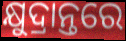
କ୍ଷୁଦ୍ରାନ୍ତରେ